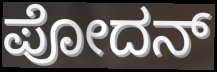
ಪೋದನ್